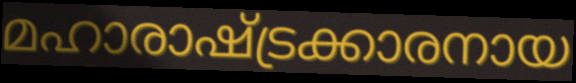
മഹാരാഷ്ട്രക്കാരനായ